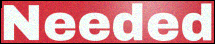
Needed